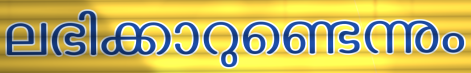
ലഭിക്കാറുണ്ടെന്നും